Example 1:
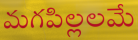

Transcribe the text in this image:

మగపిల్లలమే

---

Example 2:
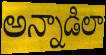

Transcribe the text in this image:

అన్నాడిలా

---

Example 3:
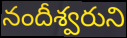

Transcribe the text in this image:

నందీశ్వరుని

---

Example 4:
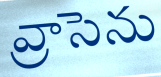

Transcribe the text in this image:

వ్రాసెను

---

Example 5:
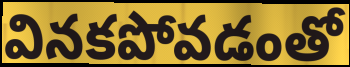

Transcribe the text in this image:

వినకపోవడంతో